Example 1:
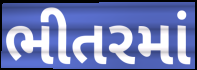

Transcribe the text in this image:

ભીતરમાં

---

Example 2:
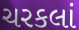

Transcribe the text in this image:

ચરકલાં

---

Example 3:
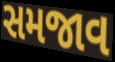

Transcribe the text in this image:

સમજાવ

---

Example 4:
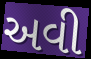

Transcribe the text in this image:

અવી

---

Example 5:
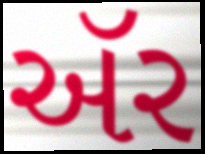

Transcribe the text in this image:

ઍર